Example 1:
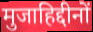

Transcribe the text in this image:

मुजाहिद्दीनों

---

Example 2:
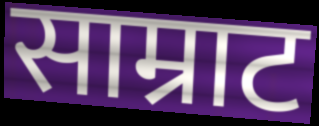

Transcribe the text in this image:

साम्राट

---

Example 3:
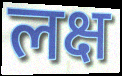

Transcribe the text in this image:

लक्ष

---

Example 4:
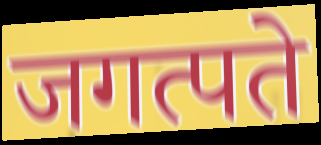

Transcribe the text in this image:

जगत्पते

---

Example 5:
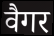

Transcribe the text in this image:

वैगर